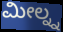
ಮೀಲ್ನ್ನ